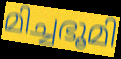
മിച്ചഭൂമി